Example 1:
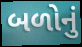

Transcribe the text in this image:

બળોનું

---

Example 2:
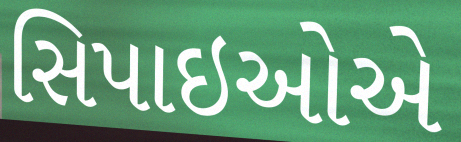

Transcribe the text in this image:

સિપાઇઓએ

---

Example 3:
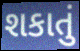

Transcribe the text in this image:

શકાતું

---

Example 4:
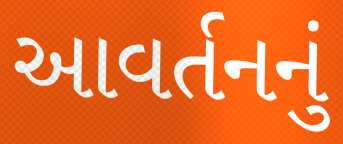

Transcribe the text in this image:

આવર્તનનું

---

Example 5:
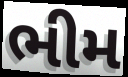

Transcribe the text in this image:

ભીમ